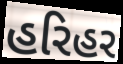
હરિહર